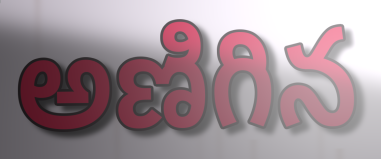
అణిగిన